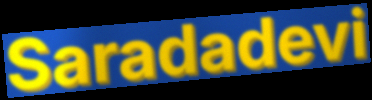
Saradadevi